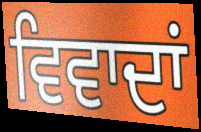
ਵਿਵਾਦਾਂ